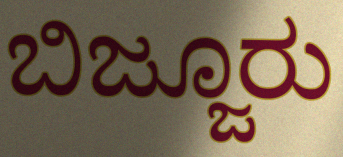
ಬಿಜ್ಜೂರು